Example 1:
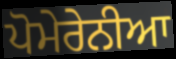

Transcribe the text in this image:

ਪੋਮੇਰੇਨੀਆ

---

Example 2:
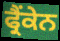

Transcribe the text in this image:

ਫ੍ਰੈਂਕੇਨ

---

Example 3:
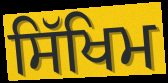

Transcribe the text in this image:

ਸਿੱਖਿਮ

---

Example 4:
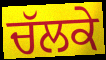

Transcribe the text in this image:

ਚੱਲਕੇ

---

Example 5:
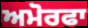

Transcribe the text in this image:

ਅਮੋਰਫਾ